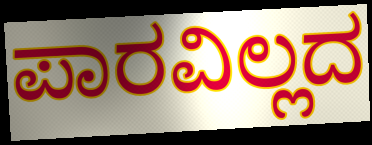
ಪಾರವಿಲ್ಲದ